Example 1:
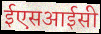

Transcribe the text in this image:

ईएसआईसी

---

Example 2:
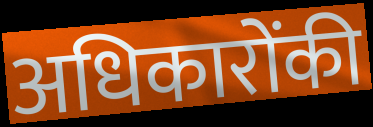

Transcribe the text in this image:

अधिकारोंकी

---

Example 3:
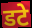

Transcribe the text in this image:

डटे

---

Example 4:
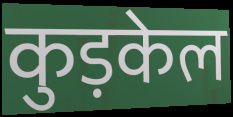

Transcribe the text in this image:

कुड़केल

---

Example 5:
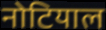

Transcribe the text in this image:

नोटियाल